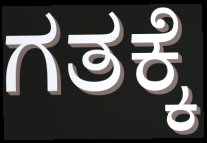
ಗತಕ್ಕೆ